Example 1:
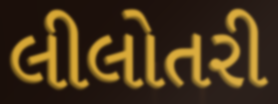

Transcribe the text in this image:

લીલોતરી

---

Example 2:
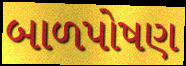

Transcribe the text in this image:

બાળપોષણ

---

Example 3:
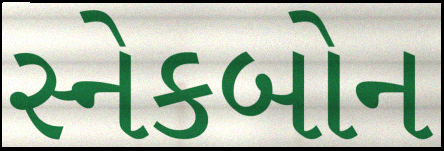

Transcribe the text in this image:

સ્નેકબોન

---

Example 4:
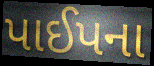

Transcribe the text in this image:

પાઈપના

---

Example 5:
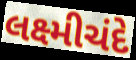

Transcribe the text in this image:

લક્ષ્મીચંદે